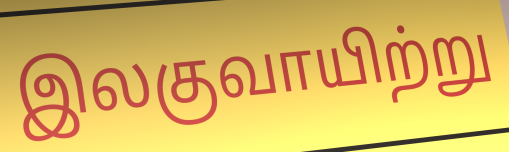
இலகுவாயிற்று